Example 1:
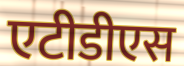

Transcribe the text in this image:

एटीडीएस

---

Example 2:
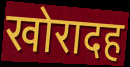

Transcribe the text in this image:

खोरादह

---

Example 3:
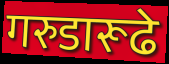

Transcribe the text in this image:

गरुडारूढे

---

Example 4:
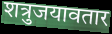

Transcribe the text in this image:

शत्रुजयावतार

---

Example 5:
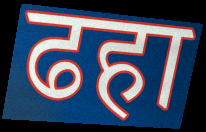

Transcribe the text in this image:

ढहा